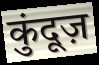
कुंदूज़